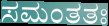
ಸಮಂತತಃ